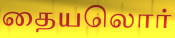
தையலொர்